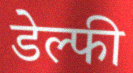
डेल्फी